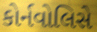
કોર્નવોલિસે